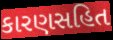
કારણસહિત